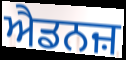
ਐਡਨਜ਼